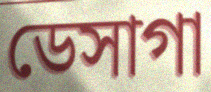
ডেসাগা